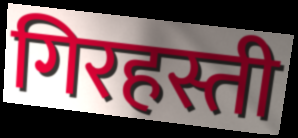
गिरहस्ती